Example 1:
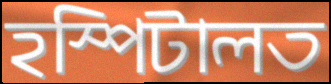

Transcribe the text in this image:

হস্পিটালত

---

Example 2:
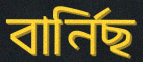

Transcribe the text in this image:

বাৰ্নিছ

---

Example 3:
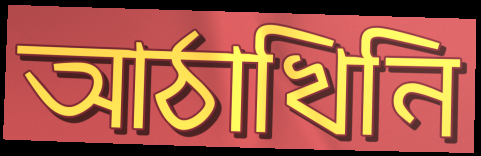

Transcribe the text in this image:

আঠাখিনি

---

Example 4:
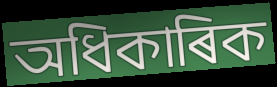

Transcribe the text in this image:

অধিকাৰিক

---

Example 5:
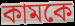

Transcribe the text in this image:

কামকে